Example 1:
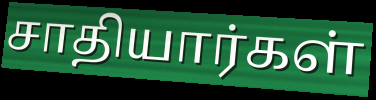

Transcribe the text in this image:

சாதியார்கள்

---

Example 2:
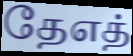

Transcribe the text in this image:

தேஎத்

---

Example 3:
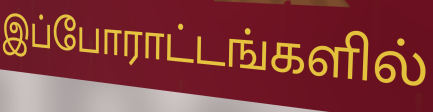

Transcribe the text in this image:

இப்போராட்டங்களில்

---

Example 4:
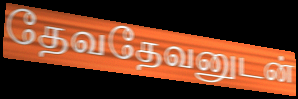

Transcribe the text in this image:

தேவதேவனுடன்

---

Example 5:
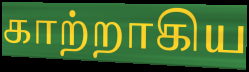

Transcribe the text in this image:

காற்றாகிய